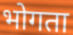
भोगता